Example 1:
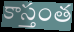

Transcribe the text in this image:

కాస్తంత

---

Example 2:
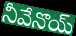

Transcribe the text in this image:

నీవేనొయ్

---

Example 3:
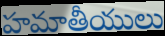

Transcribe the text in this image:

హమాతీయులు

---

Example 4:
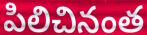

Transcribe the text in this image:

పిలిచినంత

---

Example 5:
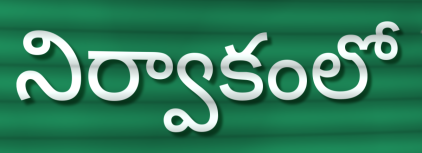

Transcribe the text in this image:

నిర్వాకంలో